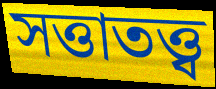
সত্তাতত্ত্ব